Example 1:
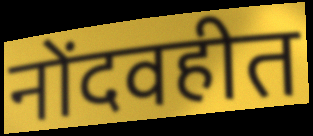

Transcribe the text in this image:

नोंदवहीत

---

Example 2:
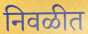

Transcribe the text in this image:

निवळीत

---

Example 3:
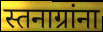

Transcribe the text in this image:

स्तनाग्रांना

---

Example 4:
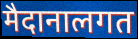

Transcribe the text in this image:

मैदानालगत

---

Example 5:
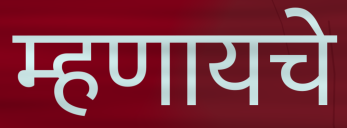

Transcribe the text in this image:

म्हणायचे